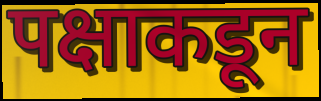
पक्षाकडून